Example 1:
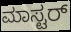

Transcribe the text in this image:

ಮಾಸ್ಟರ್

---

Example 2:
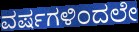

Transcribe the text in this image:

ವರ್ಷಗಳಿಂದಲೇ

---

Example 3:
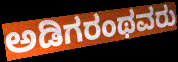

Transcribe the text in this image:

ಅಡಿಗರಂಥವರು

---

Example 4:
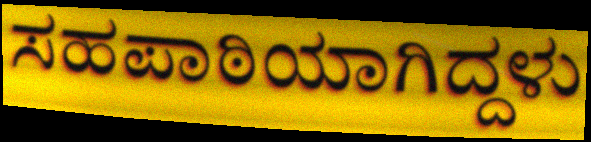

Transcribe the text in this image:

ಸಹಪಾಠಿಯಾಗಿದ್ದಳು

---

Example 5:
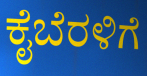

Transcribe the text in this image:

ಕೈಬೆರಳಿಗೆ